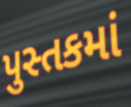
પુસ્તકમાં